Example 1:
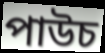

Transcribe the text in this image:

পাউচ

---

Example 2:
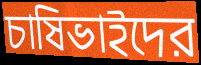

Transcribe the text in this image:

চাষিভাইদের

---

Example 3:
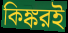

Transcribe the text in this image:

কিঙ্করই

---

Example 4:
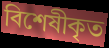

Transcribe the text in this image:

বিশেষীকৃত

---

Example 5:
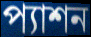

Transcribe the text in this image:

প্যাশন